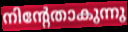
നിന്റേതാകുന്നു